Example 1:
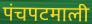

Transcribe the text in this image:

पंचपटमाली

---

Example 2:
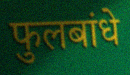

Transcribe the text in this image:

फुलबांधे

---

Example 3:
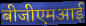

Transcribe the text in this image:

बीजीएमआई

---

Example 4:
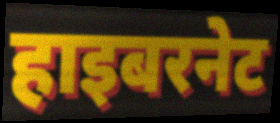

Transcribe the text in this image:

हाइबरनेट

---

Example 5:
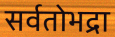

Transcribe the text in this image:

सर्वतोभद्रा